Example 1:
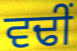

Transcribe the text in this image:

ਵਢੀਂ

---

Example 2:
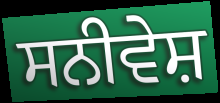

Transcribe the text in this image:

ਸਨੀਵੇਸ਼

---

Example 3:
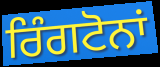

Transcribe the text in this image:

ਰਿੰਗਟੋਨਾਂ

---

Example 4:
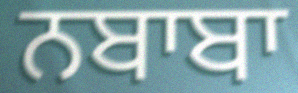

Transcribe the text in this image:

ਨਬਾਬਾ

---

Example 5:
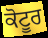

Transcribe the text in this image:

ਕੋਟੂਰ